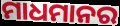
ମାଧମାନର